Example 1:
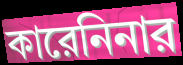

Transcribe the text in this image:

কারেনিনার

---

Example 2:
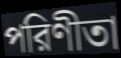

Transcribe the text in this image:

পরিণীতা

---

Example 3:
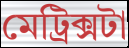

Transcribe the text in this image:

মেট্রিক্সটা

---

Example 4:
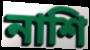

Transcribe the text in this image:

নাশি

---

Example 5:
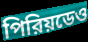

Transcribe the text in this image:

পিরিয়ডেও